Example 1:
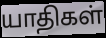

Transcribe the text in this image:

யாதிகள்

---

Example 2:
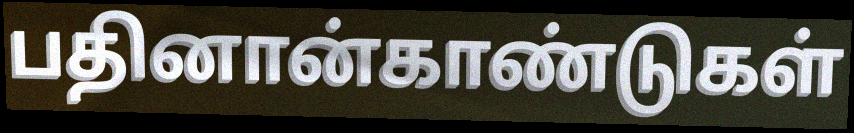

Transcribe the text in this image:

பதினான்காண்டுகள்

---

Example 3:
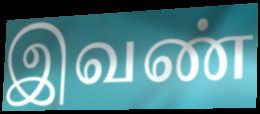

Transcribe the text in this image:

இவண்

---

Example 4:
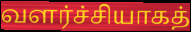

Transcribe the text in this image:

வளர்ச்சியாகத்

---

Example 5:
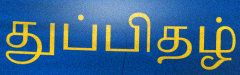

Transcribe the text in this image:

துப்பிதழ்